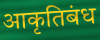
आकृतिबंध